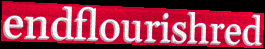
endflourishred